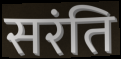
सरंति